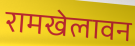
रामखेलावन